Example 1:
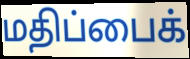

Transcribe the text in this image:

மதிப்பைக்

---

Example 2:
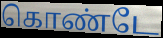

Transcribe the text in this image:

கொண்டே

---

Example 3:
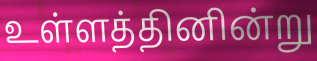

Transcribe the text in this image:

உள்ளத்தினின்று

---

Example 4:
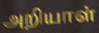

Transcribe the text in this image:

அறியாள்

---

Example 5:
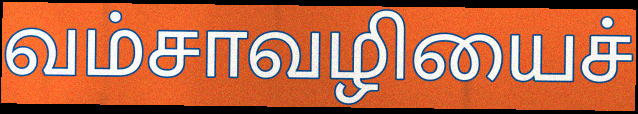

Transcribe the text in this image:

வம்சாவழியைச்